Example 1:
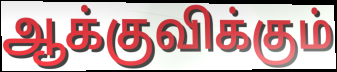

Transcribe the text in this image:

ஆக்குவிக்கும்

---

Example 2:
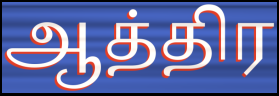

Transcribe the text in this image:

ஆத்திர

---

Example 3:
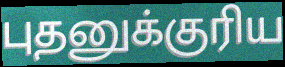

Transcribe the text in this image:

புதனுக்குரிய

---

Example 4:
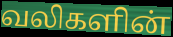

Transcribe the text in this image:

வலிகளின்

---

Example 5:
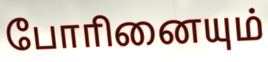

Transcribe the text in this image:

போரினையும்